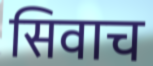
सिवाच